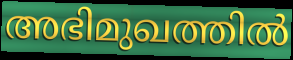
അഭിമുഖത്തിൽ